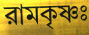
রামকৃষ্ণঃ